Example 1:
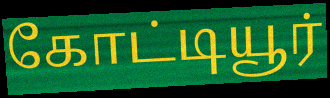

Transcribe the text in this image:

கோட்டியூர்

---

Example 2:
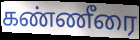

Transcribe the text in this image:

கண்ணீரை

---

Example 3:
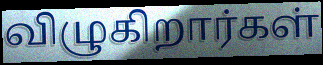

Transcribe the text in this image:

விழுகிறார்கள்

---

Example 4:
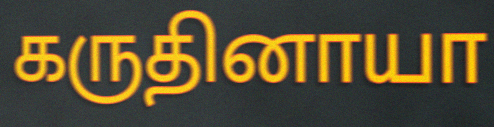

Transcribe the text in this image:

கருதினாயா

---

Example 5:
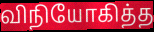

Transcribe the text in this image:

விநியோகித்த